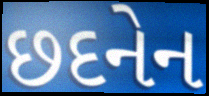
છદનેન